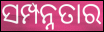
ସମ୍ପନ୍ନତାର